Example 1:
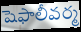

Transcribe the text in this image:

షెఫాలీవర్మ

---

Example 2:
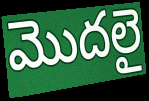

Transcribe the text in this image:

మొదలై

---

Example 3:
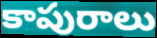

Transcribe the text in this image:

కాపురాలు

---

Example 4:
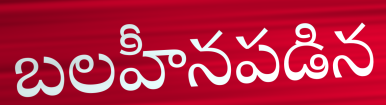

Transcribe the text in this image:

బలహీనపడిన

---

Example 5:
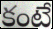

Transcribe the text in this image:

కంటే